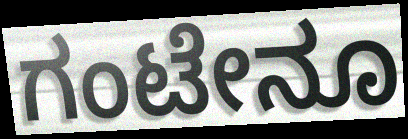
ಗಂಟೇನೂ